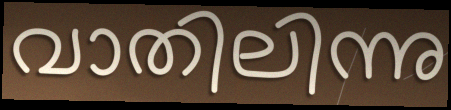
വാതിലിന്നു